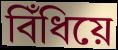
বিঁধিয়ে